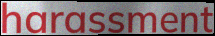
harassment